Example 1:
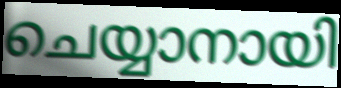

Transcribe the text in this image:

ചെയ്യാനായി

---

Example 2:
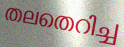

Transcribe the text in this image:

തലതെറിച്ച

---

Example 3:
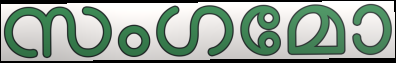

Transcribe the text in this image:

സംഗമോ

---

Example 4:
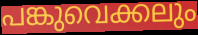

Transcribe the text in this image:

പങ്കുവെക്കലും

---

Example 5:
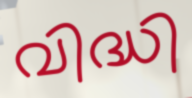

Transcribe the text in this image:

വിദ്ധി